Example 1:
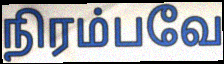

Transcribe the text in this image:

நிரம்பவே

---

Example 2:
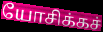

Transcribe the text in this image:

யோசிக்கச்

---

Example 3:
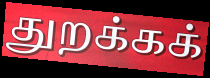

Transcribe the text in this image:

துறக்கக்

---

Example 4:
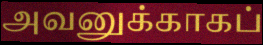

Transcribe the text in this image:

அவனுக்காகப்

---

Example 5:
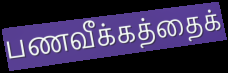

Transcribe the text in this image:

பணவீக்கத்தைக்